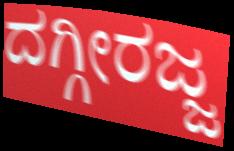
ದಗ್ಗೀರಜ್ಜ